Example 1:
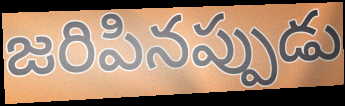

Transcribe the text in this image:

జరిపినప్పుడు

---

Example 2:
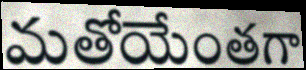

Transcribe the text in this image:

మతోయేంతగా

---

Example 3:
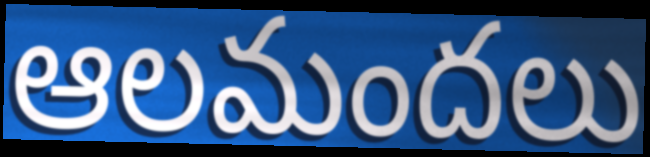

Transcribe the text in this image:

ఆలమందలు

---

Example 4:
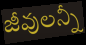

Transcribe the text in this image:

జీవులన్నీ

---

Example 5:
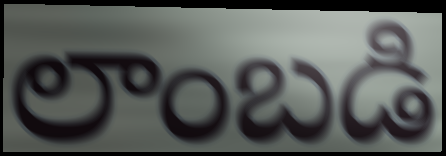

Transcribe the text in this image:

లాంబడి